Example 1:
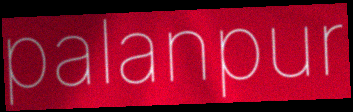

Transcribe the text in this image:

palanpur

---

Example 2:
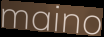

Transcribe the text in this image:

maino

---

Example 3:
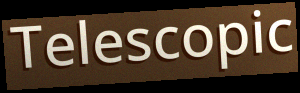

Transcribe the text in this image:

Telescopic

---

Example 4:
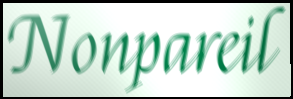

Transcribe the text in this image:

Nonpareil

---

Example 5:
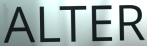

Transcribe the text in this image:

ALTER